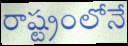
రాష్ట్రంలోనే